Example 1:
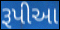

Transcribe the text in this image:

રૂપીઆ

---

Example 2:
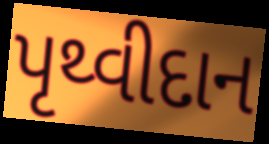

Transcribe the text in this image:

પૃથ્વીદાન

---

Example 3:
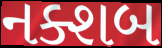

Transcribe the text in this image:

નક્શબ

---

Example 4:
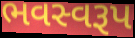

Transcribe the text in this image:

ભવસ્વરૂપ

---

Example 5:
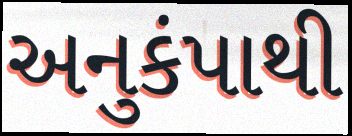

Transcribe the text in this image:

અનુકંપાથી